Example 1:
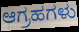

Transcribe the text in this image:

ಆಗ್ರಹಗಳು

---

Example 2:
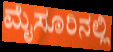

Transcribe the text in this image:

ಮೈಸೂರಿನಲ್ಲಿ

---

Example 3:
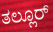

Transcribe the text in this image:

ತಲ್ಲೂರ್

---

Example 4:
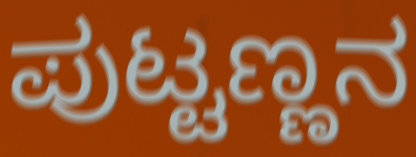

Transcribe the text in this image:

ಪುಟ್ಟಣ್ಣನ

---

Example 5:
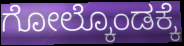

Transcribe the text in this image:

ಗೋಲ್ಕೊಂಡಕ್ಕೆ